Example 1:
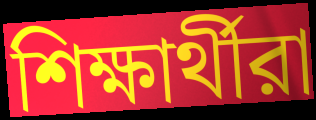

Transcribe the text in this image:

শিক্ষার্থীরা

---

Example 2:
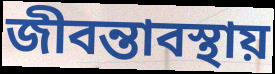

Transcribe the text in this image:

জীবন্তাবস্থায়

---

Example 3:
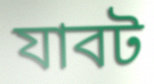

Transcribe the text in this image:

যাবট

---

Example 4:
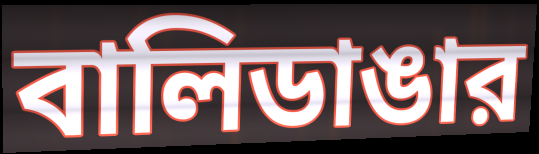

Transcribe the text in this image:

বালিডাঙার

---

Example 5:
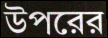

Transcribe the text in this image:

উপরের